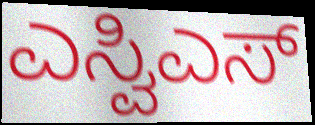
ಎಸ್ವಿಎಸ್